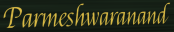
Parmeshwaranand